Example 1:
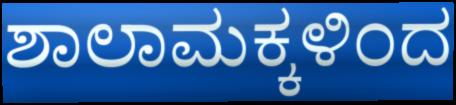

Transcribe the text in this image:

ಶಾಲಾಮಕ್ಕಳಿಂದ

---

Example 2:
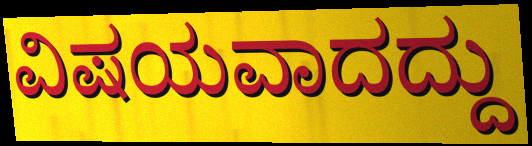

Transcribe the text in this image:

ವಿಷಯವಾದದ್ದು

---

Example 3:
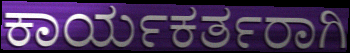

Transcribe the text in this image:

ಕಾರ್ಯಕರ್ತರಾಗಿ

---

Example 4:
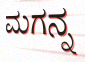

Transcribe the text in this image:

ಮಗನ್ನ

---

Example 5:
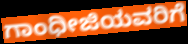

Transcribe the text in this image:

ಗಾಂಧೀಜಿಯವರಿಗೆ